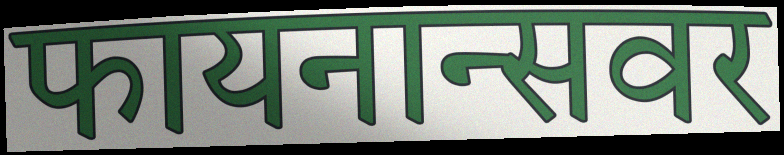
फायनान्सवर